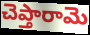
చెప్తారామె